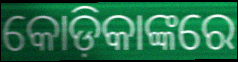
କୋଡ଼ିକାଙ୍କରେ